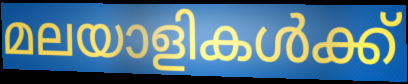
മലയാളികൾക്ക്